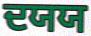
ਦਯਯ